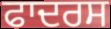
ਫਾਦਰਸ